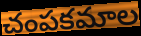
చంపకమాల